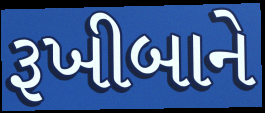
રૂખીબાને